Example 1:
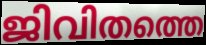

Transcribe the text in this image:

ജിവിതത്തെ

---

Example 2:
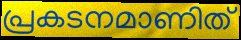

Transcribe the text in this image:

പ്രകടനമാണിത്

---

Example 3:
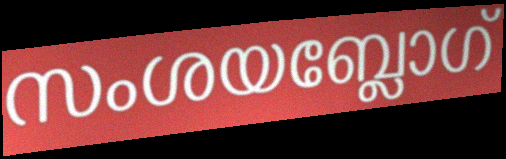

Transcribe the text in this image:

സംശയബ്ലോഗ്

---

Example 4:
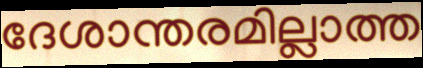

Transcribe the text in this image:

ദേശാന്തരമില്ലാത്ത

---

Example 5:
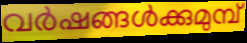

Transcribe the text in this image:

വർഷങ്ങൾക്കുമുമ്പ്